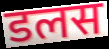
डलस